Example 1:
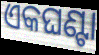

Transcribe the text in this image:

ଏକଘଣ୍ଟା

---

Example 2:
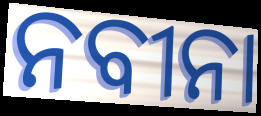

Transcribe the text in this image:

ନବୀନା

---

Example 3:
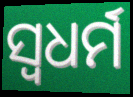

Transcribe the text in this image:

ସ୍ଵଧର୍ମ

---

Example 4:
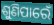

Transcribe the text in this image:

ଶୁଣିପାରେଁ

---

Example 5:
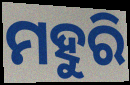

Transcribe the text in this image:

ମହୁରି